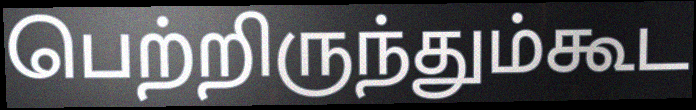
பெற்றிருந்தும்கூட